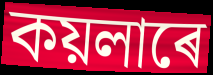
কয়লাৰে